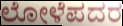
ಲೋಳೆಪದರ